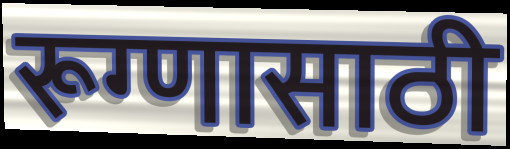
रूग्णासाठी